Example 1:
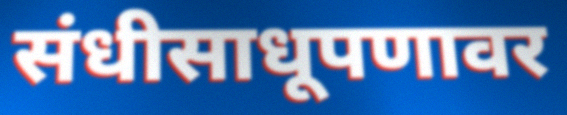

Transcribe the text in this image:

संधीसाधूपणावर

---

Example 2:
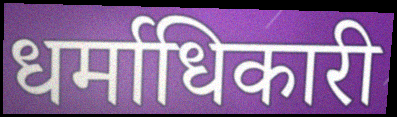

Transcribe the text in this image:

धर्माधिकारी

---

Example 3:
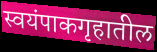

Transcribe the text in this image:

स्वयंपाकगृहातील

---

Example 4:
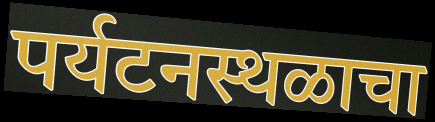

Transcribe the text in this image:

पर्यटनस्थळाचा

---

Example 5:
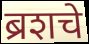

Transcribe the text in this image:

ब्रशचे